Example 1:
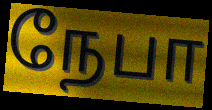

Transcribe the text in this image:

நேபா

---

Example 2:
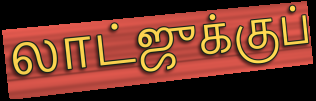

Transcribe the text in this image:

லாட்ஜுக்குப்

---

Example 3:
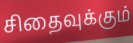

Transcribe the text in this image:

சிதைவுக்கும்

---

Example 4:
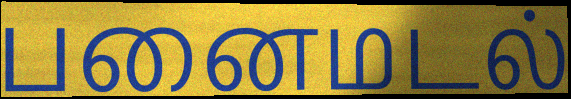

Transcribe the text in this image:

பனைமடல்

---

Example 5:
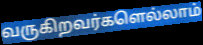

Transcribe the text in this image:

வருகிறவர்களெல்லாம்